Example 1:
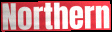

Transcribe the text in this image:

Northern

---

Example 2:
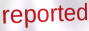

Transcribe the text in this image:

reported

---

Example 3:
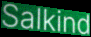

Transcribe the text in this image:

Salkind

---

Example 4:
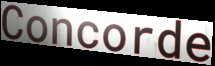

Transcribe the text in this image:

Concorde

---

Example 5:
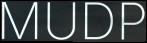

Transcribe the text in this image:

MUDP